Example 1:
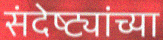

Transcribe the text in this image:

संदेष्ट्यांच्या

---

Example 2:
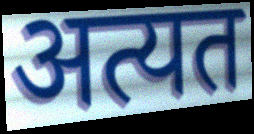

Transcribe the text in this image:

अत्यत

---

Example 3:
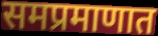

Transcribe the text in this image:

समप्रमाणात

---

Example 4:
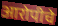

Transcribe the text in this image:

आरोपीचे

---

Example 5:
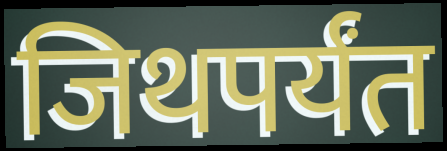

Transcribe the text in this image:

जिथपर्यंत